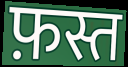
फ़स्त